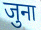
जुना